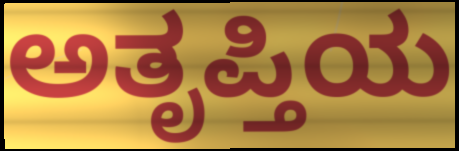
ಅತೃಪ್ತಿಯ